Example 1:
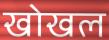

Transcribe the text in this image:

खोखल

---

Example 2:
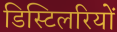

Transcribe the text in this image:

डिस्टिलरियों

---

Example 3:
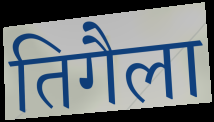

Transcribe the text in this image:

तिगैला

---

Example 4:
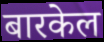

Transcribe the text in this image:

बारकेल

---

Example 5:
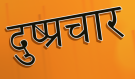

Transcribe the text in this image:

दुष्प्रचार